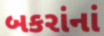
બકરાંનાં